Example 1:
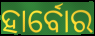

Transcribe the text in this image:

ହାର୍ବୋର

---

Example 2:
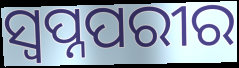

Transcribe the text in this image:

ସ୍ୱପ୍ନପରୀର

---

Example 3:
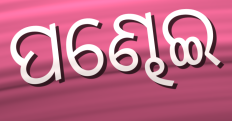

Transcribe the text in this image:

ପଣ୍ଢେଇ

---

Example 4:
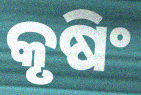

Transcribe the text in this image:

କୃଷିଂ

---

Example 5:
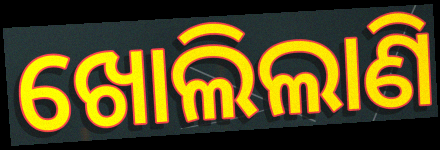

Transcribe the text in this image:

ଖୋଲିଲାଣି